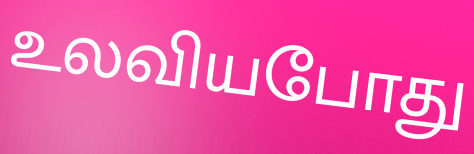
உலவியபோது